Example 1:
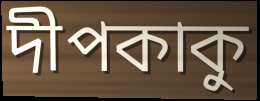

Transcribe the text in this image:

দীপকাকু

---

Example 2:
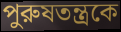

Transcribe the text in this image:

পুরুষতন্ত্রকে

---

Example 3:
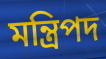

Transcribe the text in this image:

মন্ত্রিপদ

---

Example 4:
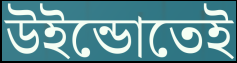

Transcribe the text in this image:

উইন্ডোতেই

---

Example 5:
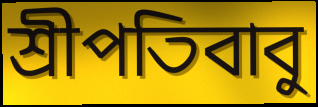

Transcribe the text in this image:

শ্রীপতিবাবু